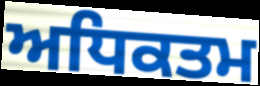
ਅਧਿਕਤਮ